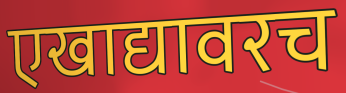
एखाद्यावरच